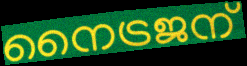
നൈട്രജന്